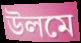
উলমে